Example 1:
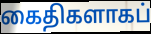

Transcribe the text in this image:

கைதிகளாகப்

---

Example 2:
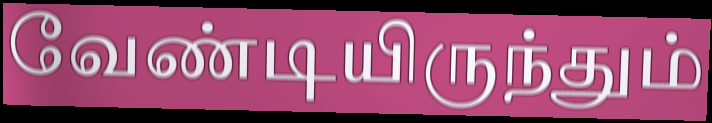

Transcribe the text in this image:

வேண்டியிருந்தும்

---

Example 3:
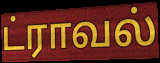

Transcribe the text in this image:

ட்ராவல்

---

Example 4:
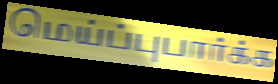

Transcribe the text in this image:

மெய்ப்புபார்க்க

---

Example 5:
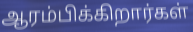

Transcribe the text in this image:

ஆரம்பிக்கிறார்கள்